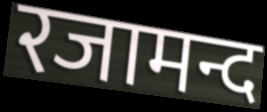
रजामन्द